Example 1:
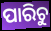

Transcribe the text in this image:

ପାରିଚୁ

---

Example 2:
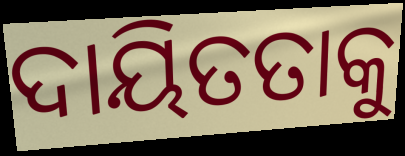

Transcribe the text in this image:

ଦାୟିତତାକୁ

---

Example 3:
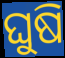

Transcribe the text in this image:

ଘୁଷି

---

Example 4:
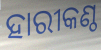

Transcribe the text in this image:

ହାରୀକଣ୍ଠ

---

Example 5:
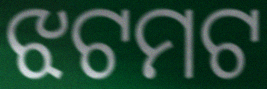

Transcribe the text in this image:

ଝଟମଟ